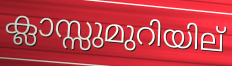
ക്ലാസ്സുമുറിയില്